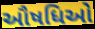
ઔષધિઓ